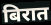
बिरात